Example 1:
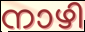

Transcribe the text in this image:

നാഴി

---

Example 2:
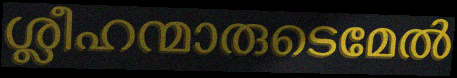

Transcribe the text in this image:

ശ്ലീഹന്മാരുടെമേൽ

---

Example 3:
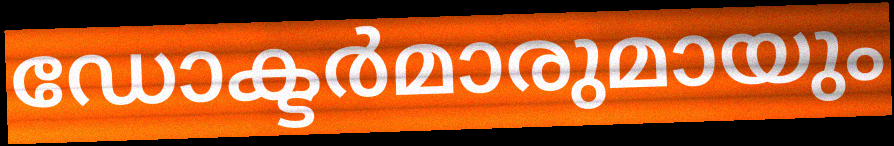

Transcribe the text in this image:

ഡോക്ടർമാരുമായും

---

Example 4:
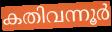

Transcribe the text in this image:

കതിവന്നൂർ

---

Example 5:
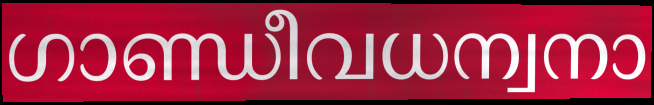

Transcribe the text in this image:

ഗാണ്ഡീവധന്വനാ